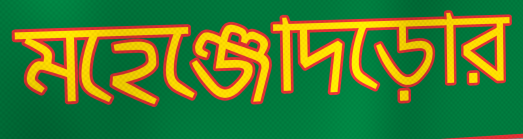
মহেঞ্জোদড়োর